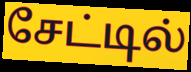
சேட்டில்